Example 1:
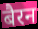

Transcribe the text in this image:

बैरन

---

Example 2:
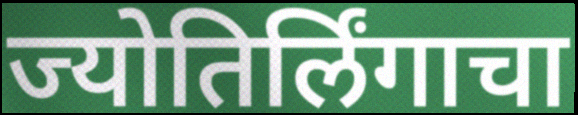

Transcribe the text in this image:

ज्योतिर्लिंगाचा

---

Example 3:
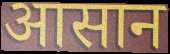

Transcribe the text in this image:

आसान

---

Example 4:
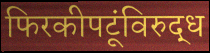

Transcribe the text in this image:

फिरकीपटूंविरुद्ध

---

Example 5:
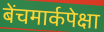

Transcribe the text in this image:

बेंचमार्कपेक्षा